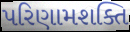
પરિણામશક્તિ